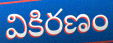
వికిరణం